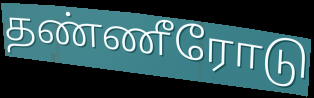
தண்ணீரோடு